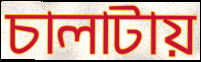
চালাটায়